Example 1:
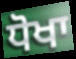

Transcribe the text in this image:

ਧੋਖਾ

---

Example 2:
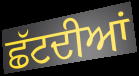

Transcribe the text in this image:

ਛੱਟਦੀਆਂ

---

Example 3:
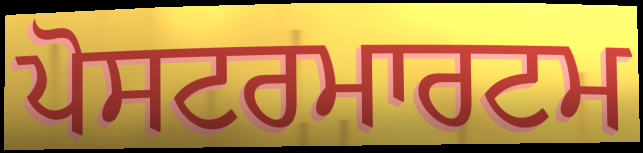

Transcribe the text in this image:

ਪੋਸਟਰਮਾਰਟਮ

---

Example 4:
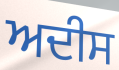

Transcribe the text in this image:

ਅਦੀਸ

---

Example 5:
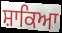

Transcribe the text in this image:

ਸ਼ਾਕਿਆ